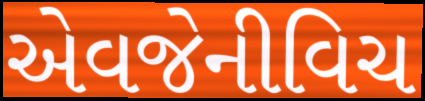
એવજેનીવિચ